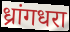
ध्रांगधरा